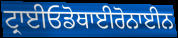
ਟ੍ਰਾਈਓਡੋਥਾਈਰੋਨਾਈਨ